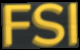
FSI